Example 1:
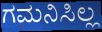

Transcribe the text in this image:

ಗಮನಿಸಿಲ್ಲ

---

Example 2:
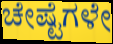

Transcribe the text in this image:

ಚೇಷ್ಟೆಗಳೇ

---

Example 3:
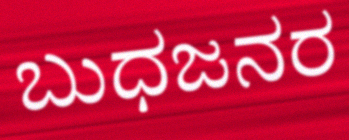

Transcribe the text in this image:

ಬುಧಜನರ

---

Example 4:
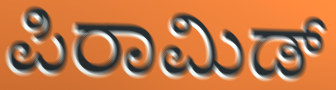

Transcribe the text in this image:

ಪಿರಾಮಿಡ್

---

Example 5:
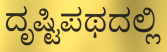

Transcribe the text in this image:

ದೃಷ್ಟಿಪಥದಲ್ಲಿ